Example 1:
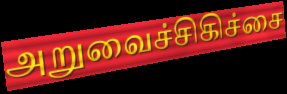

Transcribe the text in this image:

அறுவைச்சிகிச்சை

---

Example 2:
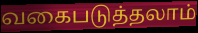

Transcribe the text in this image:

வகைபடுத்தலாம்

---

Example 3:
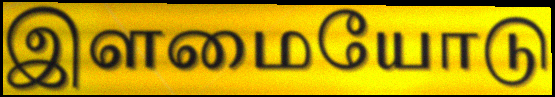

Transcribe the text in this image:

இளமையோடு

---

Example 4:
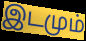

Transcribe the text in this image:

இடமும்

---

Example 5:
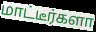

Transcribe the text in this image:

மாட்டீர்களா